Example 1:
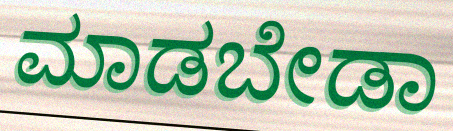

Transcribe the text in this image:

ಮಾಡಬೇಡಾ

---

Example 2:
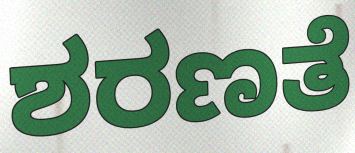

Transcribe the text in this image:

ಶರಣತೆ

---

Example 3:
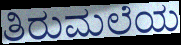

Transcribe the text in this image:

ತಿರುಮಲೆಯ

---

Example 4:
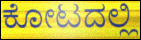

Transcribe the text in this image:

ಕೋಟದಲ್ಲಿ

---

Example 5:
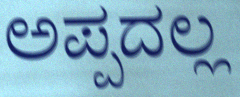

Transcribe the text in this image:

ಅಪ್ಪದಲ್ಲ